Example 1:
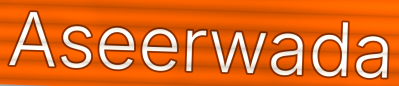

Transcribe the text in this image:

Aseerwada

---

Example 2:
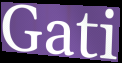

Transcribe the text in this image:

Gati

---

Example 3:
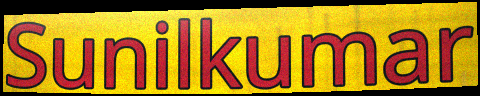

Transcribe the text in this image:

Sunilkumar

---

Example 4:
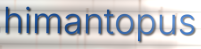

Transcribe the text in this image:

himantopus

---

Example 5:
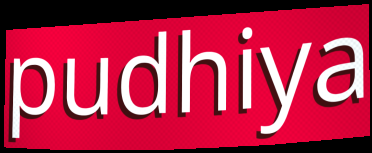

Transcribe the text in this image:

pudhiya